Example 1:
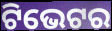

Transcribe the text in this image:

ଟିଭେଟର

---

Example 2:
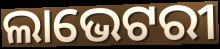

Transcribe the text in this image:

ଲାଭେଟରୀ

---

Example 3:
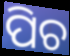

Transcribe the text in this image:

ପିଚ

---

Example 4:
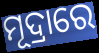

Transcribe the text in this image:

ମୂଦ୍ରାରେ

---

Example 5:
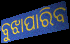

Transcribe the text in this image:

ବୁଝାପାରିବ